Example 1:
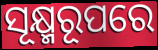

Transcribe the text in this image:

ସୂକ୍ଷ୍ମରୂପରେ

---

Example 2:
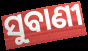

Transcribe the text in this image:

ସୁବାଣୀ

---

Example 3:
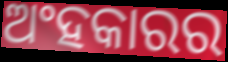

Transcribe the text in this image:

ଅଂହକାରର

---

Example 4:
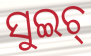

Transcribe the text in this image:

ସୁଇଚ୍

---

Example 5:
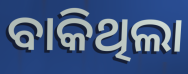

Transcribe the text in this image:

ବାକିଥିଲା